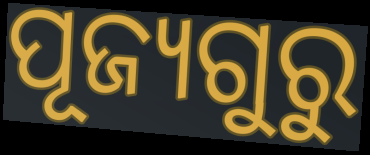
ପୂଜ୍ୟଗୁରୁ